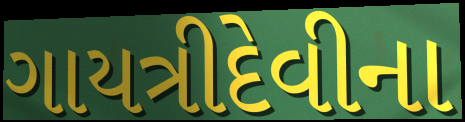
ગાયત્રીદેવીના